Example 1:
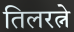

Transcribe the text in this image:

तिलरत्ने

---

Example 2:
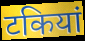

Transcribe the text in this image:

टकियां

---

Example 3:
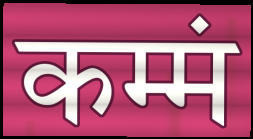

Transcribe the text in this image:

कम्मं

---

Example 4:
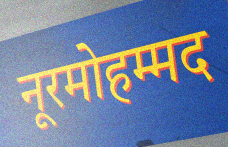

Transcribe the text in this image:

नूरमोहम्मद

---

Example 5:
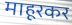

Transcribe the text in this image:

माहूरकर